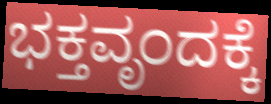
ಭಕ್ತವೃಂದಕ್ಕೆ